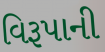
વિરૂપાની